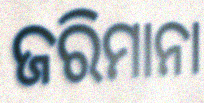
ଜରିମାନା